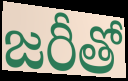
జరీతో